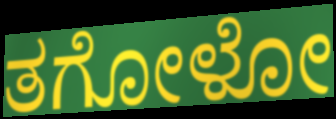
ತಗೋಳೋ